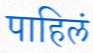
पाहिलं